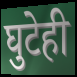
घुटेही